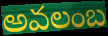
అవలంబ